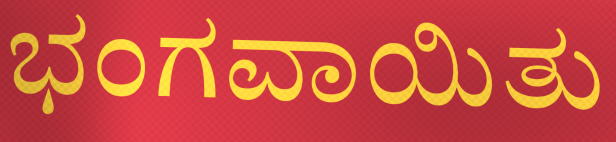
ಭಂಗವಾಯಿತು